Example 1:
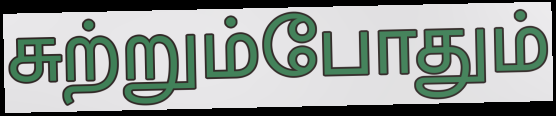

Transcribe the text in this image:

சுற்றும்போதும்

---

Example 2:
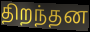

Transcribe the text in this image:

திறந்தன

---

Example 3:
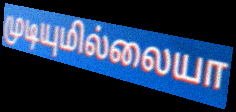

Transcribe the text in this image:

முடியுமில்லையா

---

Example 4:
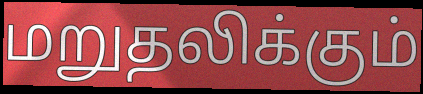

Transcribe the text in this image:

மறுதலிக்கும்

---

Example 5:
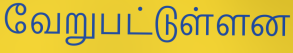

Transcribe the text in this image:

வேறுபட்டுள்ளன